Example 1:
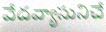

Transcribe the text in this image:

వేదవ్యాసునిచే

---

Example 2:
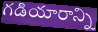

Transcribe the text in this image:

గడియారాన్ని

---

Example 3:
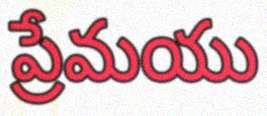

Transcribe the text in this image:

ప్రేమయు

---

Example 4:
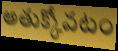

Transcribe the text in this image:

అతుక్కోవటం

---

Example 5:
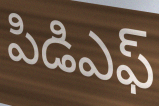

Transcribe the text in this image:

పిడిఎఫ్